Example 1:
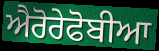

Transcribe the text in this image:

ਐਰੋਰੇਫੋਬੀਆ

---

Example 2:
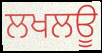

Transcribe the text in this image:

ਲਖਲਊ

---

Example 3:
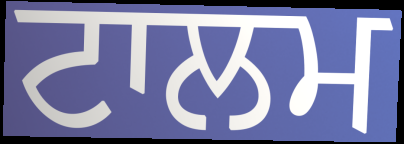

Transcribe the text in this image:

ਟਾਲਮ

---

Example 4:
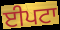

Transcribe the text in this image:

ਈਪਟਾ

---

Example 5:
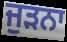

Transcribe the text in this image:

ਜੁੜਨਾ